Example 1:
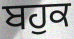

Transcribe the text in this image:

ਬਹੁਕ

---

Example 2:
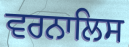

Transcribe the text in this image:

ਵਰਨਾਲਿਸ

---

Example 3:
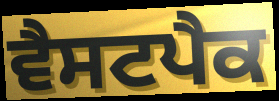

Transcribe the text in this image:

ਵੈਸਟਪੈਕ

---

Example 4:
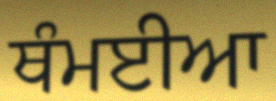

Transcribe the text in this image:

ਥੰਮਈਆ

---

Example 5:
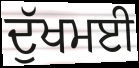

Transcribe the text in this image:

ਦੁੱਖਮਈ